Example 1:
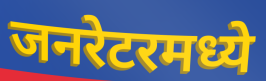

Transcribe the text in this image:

जनरेटरमध्ये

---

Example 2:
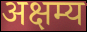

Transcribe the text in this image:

अक्षम्य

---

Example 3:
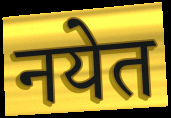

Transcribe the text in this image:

नयेत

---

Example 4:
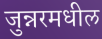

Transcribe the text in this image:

जुन्नरमधील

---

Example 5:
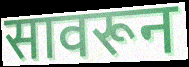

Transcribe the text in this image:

सावरून